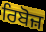
ਰਿਬੋਜ਼